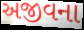
અજીવના